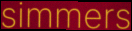
simmers